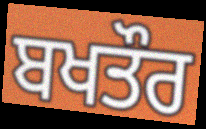
ਬਖਤੌਰ